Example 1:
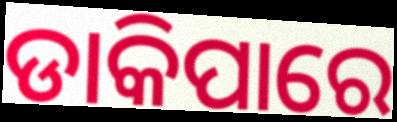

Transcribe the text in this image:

ଡାକିପାରେ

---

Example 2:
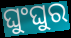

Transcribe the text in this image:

ଘୁଂଘୁର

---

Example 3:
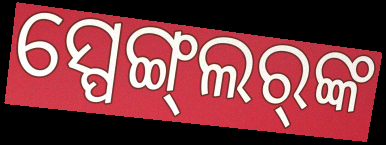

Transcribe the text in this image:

ସ୍ପେଙ୍ଗ୍‌ଲର୍‌ଙ୍କ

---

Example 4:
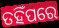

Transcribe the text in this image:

ତହିଁପରେ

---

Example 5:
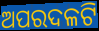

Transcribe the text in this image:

ଅପରଦଳଟି